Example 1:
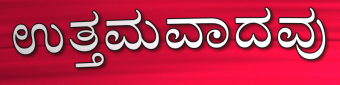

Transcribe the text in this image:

ಉತ್ತಮವಾದವು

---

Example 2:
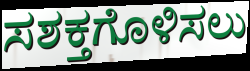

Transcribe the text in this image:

ಸಶಕ್ತಗೊಳಿಸಲು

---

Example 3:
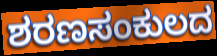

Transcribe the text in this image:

ಶರಣಸಂಕುಲದ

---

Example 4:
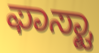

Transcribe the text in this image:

ಫಾಸ್ಟಾ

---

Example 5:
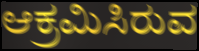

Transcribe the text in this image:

ಆಕ್ರಮಿಸಿರುವ